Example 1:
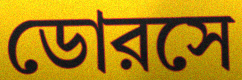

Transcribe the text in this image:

ডোরসে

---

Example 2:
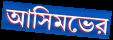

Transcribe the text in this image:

আসিমভের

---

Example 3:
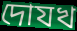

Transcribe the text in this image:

দোযখ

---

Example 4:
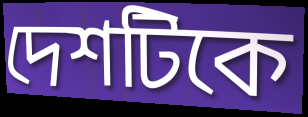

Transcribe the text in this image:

দেশটিকে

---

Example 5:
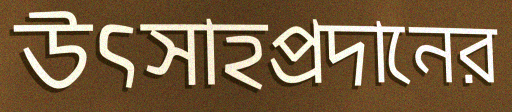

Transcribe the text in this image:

উৎসাহপ্রদানের